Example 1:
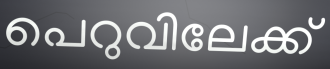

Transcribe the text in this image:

പെറുവിലേക്ക്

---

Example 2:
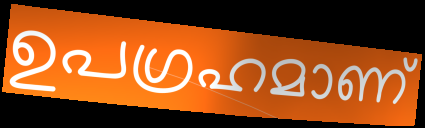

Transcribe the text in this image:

ഉപഗ്രഹമാണ്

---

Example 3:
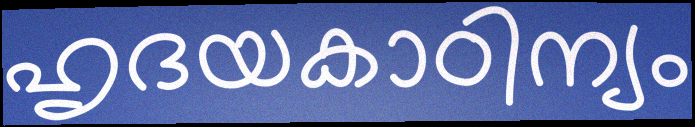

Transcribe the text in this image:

ഹൃദയകാഠിന്യം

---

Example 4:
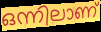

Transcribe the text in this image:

ഒന്നിലാണ്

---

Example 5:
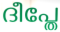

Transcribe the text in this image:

ദീപ്തേ